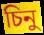
চিনু